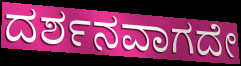
ದರ್ಶನವಾಗದೇ